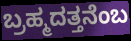
ಬ್ರಹ್ಮದತ್ತನೆಂಬ